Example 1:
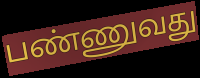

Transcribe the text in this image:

பண்ணுவது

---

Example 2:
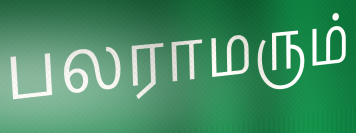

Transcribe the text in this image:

பலராமரும்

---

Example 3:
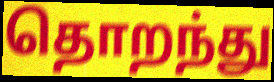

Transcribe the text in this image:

தொறந்து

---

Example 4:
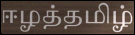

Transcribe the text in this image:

ஈழத்தமிழ்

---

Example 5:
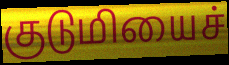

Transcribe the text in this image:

குடுமியைச்